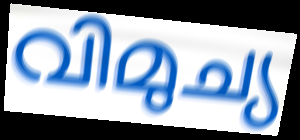
വിമുച്യ